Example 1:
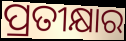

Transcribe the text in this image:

ପ୍ରତୀକ୍ଷାର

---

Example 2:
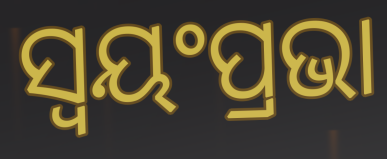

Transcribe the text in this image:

ସ୍ଵୟଂପ୍ରଭା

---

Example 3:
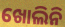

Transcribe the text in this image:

ଖୋଲିନି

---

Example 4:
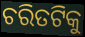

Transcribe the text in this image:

ଚରିତଟିକୁ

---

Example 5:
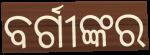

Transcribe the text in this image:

ବର୍ଗୀଙ୍କର